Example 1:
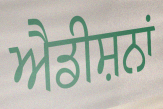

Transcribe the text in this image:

ਐਡੀਸ਼ਨਾਂ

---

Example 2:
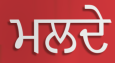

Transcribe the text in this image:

ਮਲਦੇ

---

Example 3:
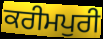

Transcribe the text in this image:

ਕਰੀਮਪੁਰੀ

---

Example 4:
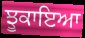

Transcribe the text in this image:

ਝੂਕਾਇਆ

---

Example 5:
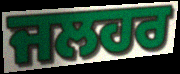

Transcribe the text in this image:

ਜਲਹਰ